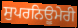
ਸੁਪਰਨਿਊਮੇਰੀ